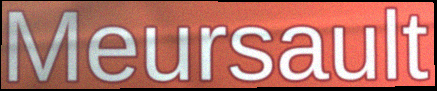
Meursault